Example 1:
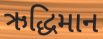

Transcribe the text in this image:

ઋદ્ધિમાન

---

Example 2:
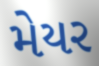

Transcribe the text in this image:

મેયર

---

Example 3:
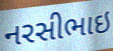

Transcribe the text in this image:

નરસીભાઇ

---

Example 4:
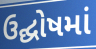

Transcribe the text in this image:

ઉદ્ઘોષમાં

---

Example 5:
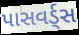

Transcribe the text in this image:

પાસવર્ડ્સ